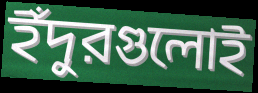
ইঁদুরগুলোই